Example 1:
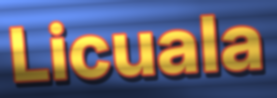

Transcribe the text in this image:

Licuala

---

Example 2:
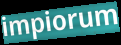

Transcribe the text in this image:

impiorum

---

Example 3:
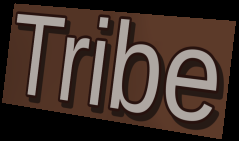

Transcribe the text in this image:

Tribe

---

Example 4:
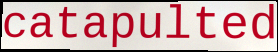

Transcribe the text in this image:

catapulted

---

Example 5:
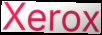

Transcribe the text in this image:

Xerox